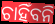
ଚାହିଁବନି